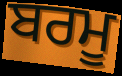
ਬਰਮੂ